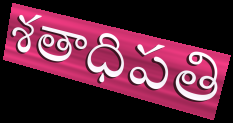
శతాధిపతి